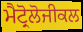
ਮੈਟ੍ਰੋਲੋਜੀਕਲ